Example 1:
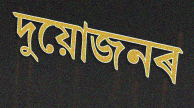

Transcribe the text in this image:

দুয়োজনৰ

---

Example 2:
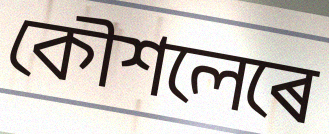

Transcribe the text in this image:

কৌশলেৰে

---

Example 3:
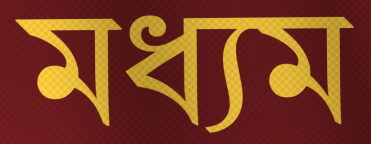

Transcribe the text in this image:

মধ্যম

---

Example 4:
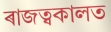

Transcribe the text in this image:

ৰাজত্বকালত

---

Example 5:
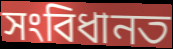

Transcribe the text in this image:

সংবিধানত